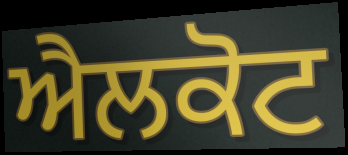
ਐਲਕੋਟ